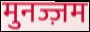
मुनज्ज़म